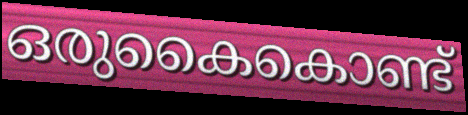
ഒരുകൈകൊണ്ട്